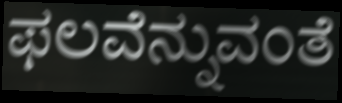
ಫಲವೆನ್ನುವಂತೆ